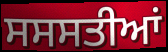
ਸਸਸਤੀਆਂ